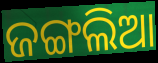
ଜଙ୍ଗଲିଆ